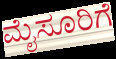
ಮೈಸೂರಿಗೆ